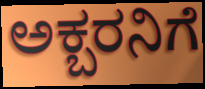
ಅಕ್ಬರನಿಗೆ